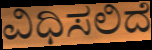
ವಿಧಿಸಲಿದೆ